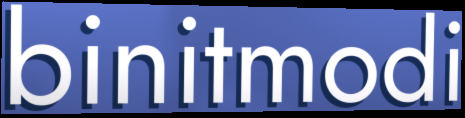
binitmodi